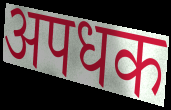
अपधक